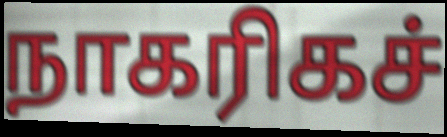
நாகரிகச்